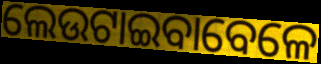
ଲେଉଟାଇବାବେଳେ